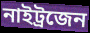
নাইট্রজেন